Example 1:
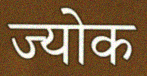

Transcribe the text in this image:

ज्योक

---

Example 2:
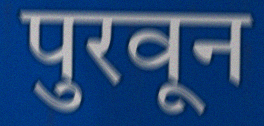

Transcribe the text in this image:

पुरवून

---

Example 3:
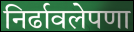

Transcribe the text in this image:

निर्ढावलेपणा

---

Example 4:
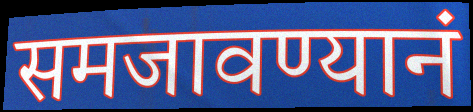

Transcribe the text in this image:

समजावण्यानं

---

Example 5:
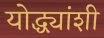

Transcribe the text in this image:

योद्ध्यांशी